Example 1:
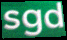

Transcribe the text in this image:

sgd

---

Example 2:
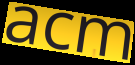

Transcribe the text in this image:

acm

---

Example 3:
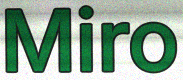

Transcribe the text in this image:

Miro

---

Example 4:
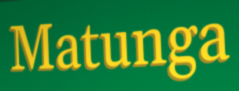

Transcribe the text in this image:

Matunga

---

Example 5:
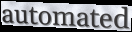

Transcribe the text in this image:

automated